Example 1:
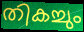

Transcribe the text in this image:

തികച്ചും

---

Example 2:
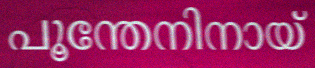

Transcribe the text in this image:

പൂന്തേനിനായ്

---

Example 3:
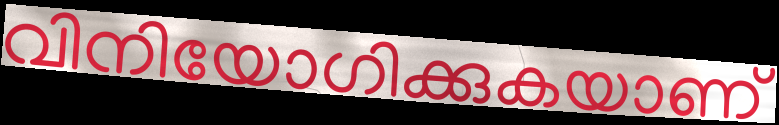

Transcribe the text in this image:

വിനിയോഗിക്കുകയാണ്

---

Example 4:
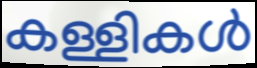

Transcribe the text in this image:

കള്ളികൾ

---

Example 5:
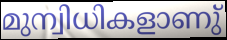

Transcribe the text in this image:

മുന്വിധികളാണു്